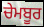
ਚੇਮਬੂਰ